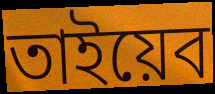
তাইয়েব